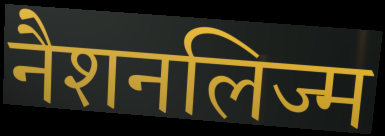
नैशनलिज्म